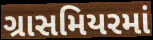
ગ્રાસમિયરમાં